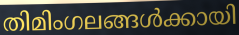
തിമിംഗലങ്ങൾക്കായി